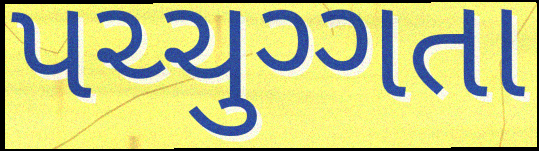
પચ્ચુગ્ગતા